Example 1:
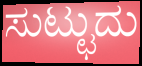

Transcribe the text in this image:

ಸುಟ್ಟುದು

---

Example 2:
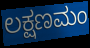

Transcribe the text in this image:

ಲಕ್ಷಣಮಂ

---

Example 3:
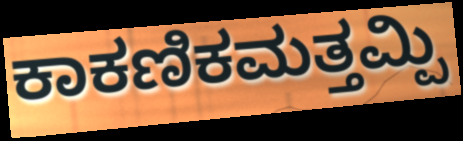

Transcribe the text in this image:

ಕಾಕಣಿಕಮತ್ತಮ್ಪಿ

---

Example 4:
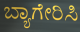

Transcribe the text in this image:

ಬ್ಯಾಗೇರಿಸಿ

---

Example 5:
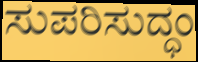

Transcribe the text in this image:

ಸುಪರಿಸುದ್ಧಂ